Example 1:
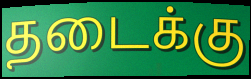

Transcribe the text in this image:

தடைக்கு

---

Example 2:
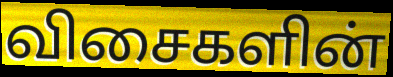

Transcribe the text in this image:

விசைகளின்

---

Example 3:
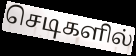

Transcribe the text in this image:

செடிகளில்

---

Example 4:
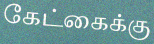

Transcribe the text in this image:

கேட்கைக்கு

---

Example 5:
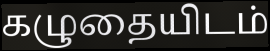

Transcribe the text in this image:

கழுதையிடம்